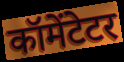
कॉमेंटेटर